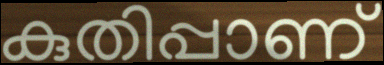
കുതിപ്പാണ്